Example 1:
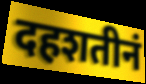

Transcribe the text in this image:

दहशतीनं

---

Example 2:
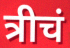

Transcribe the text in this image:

त्रीचं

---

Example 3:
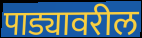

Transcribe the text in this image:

पाड्यावरील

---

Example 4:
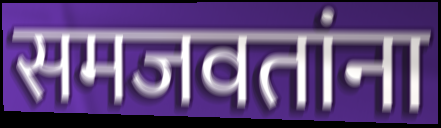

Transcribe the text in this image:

समजवतांना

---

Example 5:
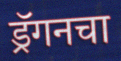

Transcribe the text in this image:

ड्रॅगनचा